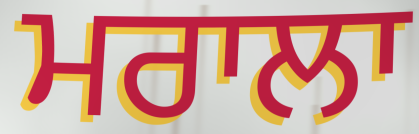
ਮਰਾਲਾ